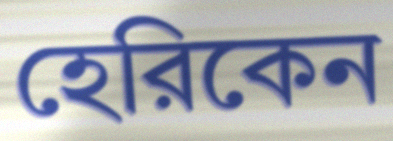
হেরিকেন